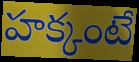
హక్కంటే